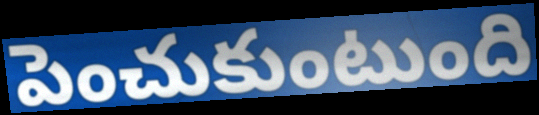
పెంచుకుంటుంది